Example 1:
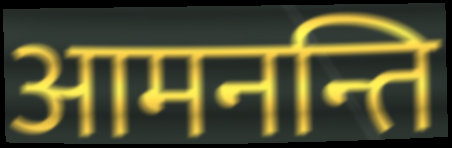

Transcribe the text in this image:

आमनन्ति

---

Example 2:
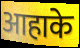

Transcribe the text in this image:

आहाके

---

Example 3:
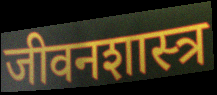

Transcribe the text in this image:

जीवनशास्त्र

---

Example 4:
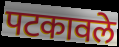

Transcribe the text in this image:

पटकावले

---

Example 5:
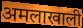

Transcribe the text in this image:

अमलाखाली